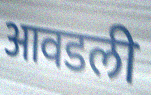
आवडली